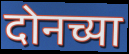
दोनच्या